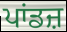
ਪਾਂਡਜ਼